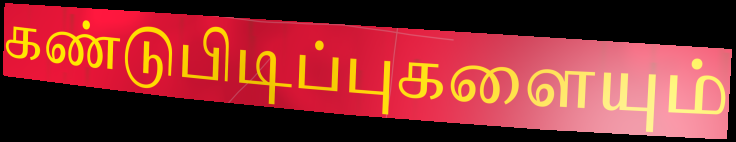
கண்டுபிடிப்புகளையும்